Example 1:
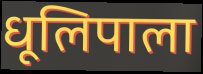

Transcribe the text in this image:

धूलिपाला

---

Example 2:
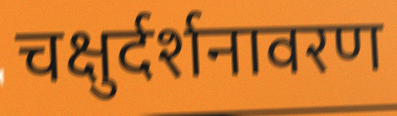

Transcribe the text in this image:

चक्षुर्दर्शनावरण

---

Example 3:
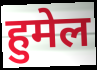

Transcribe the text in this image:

हुमेल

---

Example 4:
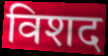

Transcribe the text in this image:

विशद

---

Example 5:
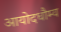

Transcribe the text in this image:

आयोदधौम्य